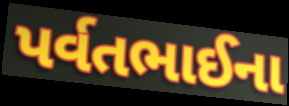
પર્વતભાઈના